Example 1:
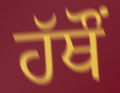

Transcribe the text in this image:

ਹੱਥੌਂ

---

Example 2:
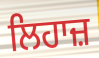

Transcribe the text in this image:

ਲਿਹਾਜ਼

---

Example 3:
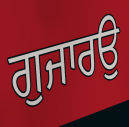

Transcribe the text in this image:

ਗੁਜਾਰਉ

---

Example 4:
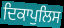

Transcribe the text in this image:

ਦਿਕਾਪੁਲਿਸ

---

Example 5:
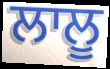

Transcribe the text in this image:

ਲਾਲੂ